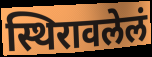
स्थिरावलेलं